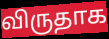
விருதாக